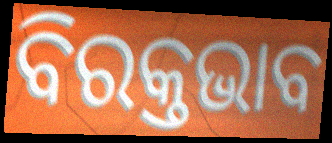
ବିରକ୍ତଭାବ